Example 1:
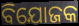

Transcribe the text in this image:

ବିଯୋଜକ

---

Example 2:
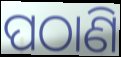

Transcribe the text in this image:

ପଠାଣି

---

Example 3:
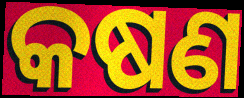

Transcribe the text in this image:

କଷଣ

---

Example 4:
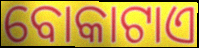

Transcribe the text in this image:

ବୋକାଟାଏ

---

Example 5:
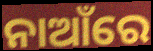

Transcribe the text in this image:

ନାଆଁରେ